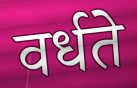
वर्धते